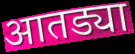
आतड्या